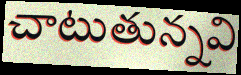
చాటుతున్నవి